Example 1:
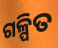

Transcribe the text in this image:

ଗଳ୍ପିତ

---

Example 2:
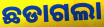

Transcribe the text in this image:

ଛଡାଗଲା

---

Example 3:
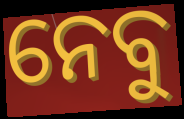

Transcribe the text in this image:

ନେବୁ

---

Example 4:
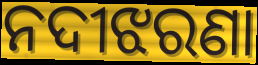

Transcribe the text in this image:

ନଦୀଝରଣା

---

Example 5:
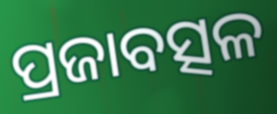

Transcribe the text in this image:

ପ୍ରଜାବତ୍ସଳ